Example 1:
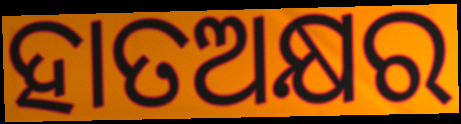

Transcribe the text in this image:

ହାତଅକ୍ଷର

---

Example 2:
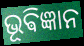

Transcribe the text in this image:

ଭୂଵିଜ୍ଞାନ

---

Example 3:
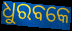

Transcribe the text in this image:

ଧୁରବକେ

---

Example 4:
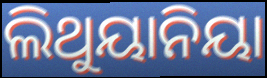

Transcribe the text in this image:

ଲିଥୁୟାନିୟା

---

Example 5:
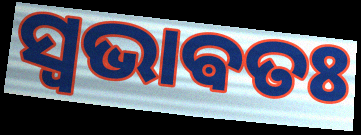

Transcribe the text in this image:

ସ୍ଵଭାଵତଃ